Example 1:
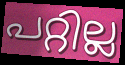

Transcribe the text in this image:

പറ്റില്ല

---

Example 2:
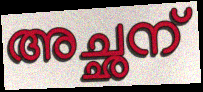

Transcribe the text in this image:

അച്ഛന്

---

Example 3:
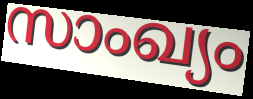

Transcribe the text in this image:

സാംഖ്യം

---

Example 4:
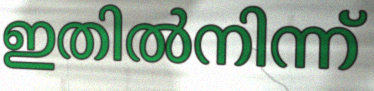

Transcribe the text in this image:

ഇതിൽനിന്ന്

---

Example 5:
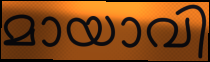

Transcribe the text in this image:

മായാവി